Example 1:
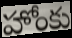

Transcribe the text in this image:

హోంకు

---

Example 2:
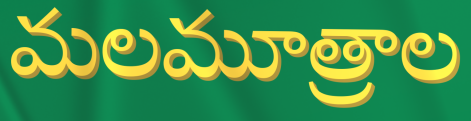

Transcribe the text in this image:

మలమూత్రాల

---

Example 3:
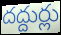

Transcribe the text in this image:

దద్దుర్లు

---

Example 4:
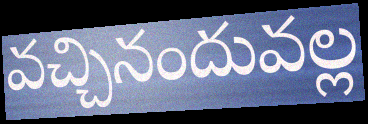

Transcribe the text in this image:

వచ్చినందువల్ల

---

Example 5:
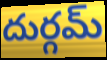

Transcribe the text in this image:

దుర్గమ్